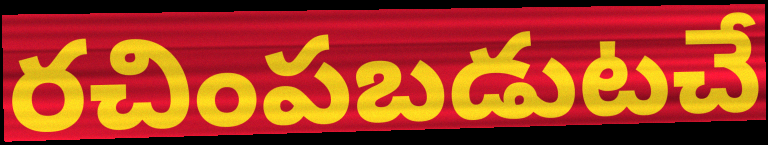
రచింపబడుటచే